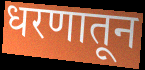
धरणातून